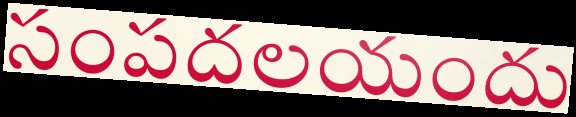
సంపదలయందు